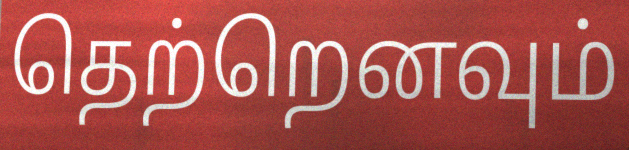
தெற்றெனவும்